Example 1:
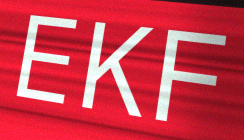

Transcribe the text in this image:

EKF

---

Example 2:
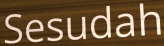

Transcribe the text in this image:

Sesudah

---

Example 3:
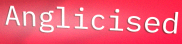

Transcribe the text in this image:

Anglicised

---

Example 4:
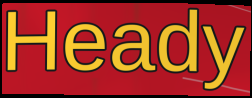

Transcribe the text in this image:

Heady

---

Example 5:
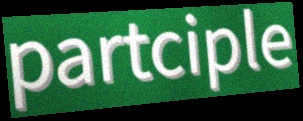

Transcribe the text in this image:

partciple